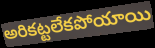
అరికట్టలేకపోయాయి